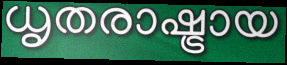
ധൃതരാഷ്ട്രായ